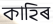
কাহিৰ